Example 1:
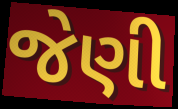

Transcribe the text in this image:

જેણી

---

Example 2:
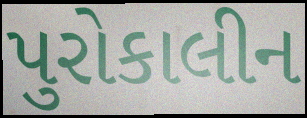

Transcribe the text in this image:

પુરોકાલીન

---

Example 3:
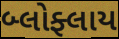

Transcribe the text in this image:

બ્લોફ્લાય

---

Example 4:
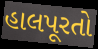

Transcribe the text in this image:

હાલપૂરતો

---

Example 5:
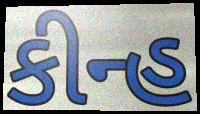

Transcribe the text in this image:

કીન્હ